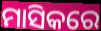
ମାସିକରେ